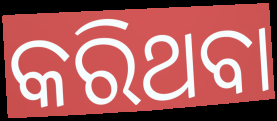
କରିଥବା